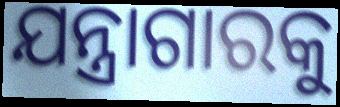
ଯନ୍ତ୍ରାଗାରକୁ